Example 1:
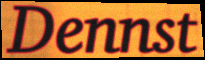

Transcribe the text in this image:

Dennst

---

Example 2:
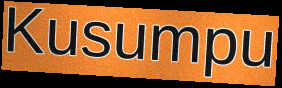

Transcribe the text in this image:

Kusumpu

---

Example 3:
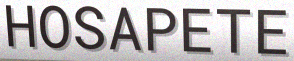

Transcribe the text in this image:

HOSAPETE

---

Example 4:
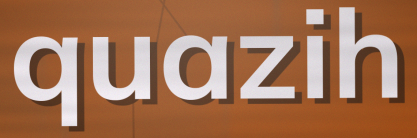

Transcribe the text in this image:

quazih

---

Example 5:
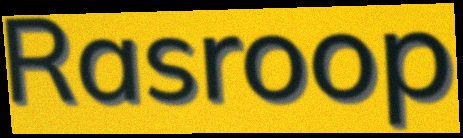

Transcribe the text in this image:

Rasroop